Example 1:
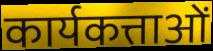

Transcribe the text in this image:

कार्यकत्ताओं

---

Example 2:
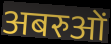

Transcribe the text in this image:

अबरुओं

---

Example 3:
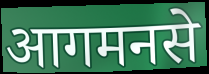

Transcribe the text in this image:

आगमनसे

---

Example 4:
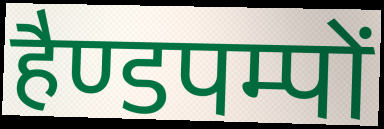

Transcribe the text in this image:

हैण्डपम्पों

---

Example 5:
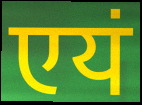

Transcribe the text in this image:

एयं